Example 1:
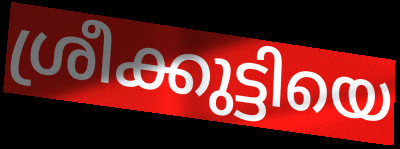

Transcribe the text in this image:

ശ്രീക്കുട്ടിയെ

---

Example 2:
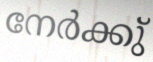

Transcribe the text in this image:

നേർക്കു്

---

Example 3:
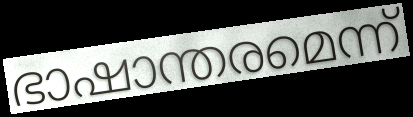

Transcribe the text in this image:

ഭാഷാന്തരമെന്ന്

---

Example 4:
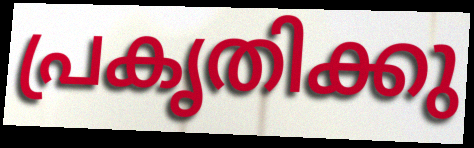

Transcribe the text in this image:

പ്രകൃതിക്കു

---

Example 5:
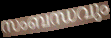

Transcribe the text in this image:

സംബന്ധവും